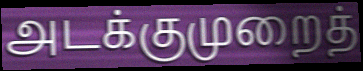
அடக்குமுறைத்